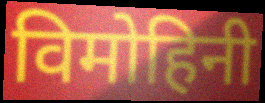
विमोहिनी